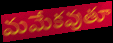
మమేకవుతూ